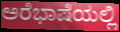
ಅರೆಭಾಷೆಯಲ್ಲಿ